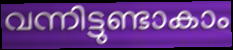
വന്നിട്ടുണ്ടാകാം